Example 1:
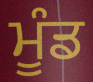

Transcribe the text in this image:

ਮੂੰਡ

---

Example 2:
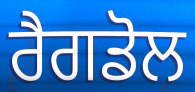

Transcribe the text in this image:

ਰੈਗਡੋਲ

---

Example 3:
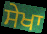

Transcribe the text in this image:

ਸੇਖਾ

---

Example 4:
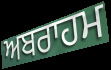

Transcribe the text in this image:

ਅਬਰਾਹਮ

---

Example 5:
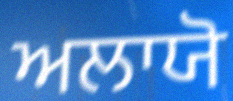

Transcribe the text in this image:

ਅਲਾਯੋ